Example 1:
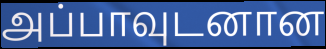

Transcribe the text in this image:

அப்பாவுடனான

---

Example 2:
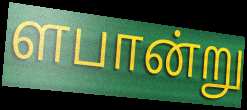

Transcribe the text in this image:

ளபான்று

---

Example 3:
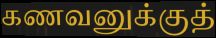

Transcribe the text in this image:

கணவனுக்குத்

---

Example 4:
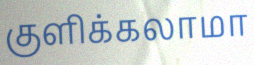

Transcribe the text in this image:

குளிக்கலாமா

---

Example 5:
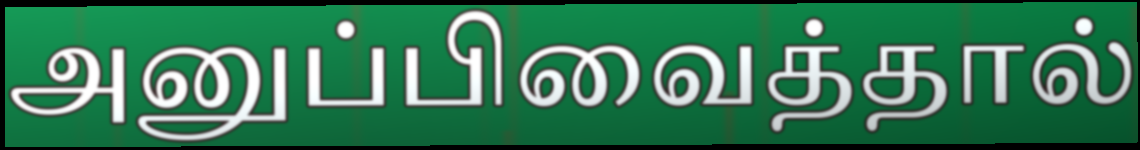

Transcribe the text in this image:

அனுப்பிவைத்தால்